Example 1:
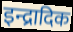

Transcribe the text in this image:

इन्द्रादिक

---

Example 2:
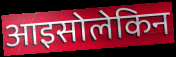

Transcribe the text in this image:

आइसोलेकिन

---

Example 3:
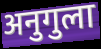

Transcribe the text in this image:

अनुगुला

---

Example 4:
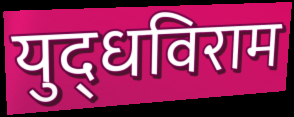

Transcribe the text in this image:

युद्धविराम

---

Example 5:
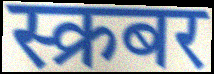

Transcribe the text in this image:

स्‍क्रबर